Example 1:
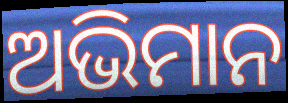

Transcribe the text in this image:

ଅଭିମାନ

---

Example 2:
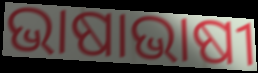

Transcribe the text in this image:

ଭାଷାଭାଷୀ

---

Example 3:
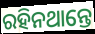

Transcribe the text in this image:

ରହିନଥାନ୍ତେ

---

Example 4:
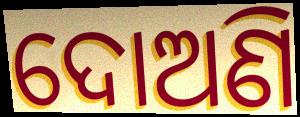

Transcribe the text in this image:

ଦୋଅଣି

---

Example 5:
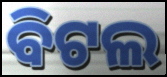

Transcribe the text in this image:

ବିଟଲ